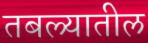
तबल्यातील